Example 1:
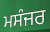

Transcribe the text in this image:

ਮਸੰਜਰ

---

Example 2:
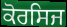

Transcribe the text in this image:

ਕੋਰਸਿਜ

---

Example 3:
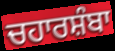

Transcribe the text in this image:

ਚਹਾਰਸ਼ੰਬਾ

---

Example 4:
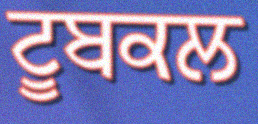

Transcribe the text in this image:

ਟੂਬਕਲ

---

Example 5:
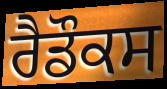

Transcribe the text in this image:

ਰੈਡੌਕਸ